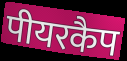
पीयरकैप